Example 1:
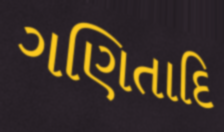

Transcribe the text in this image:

ગણિતાદિ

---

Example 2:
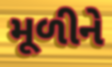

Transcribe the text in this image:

મૂળીને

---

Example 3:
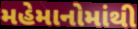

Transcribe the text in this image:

મહેમાનોમાંથી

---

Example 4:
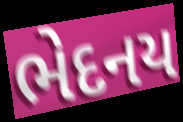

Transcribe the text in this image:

ભેદનય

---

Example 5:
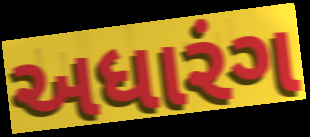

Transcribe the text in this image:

અધારંગ